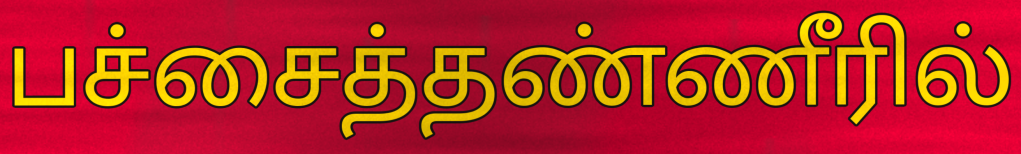
பச்சைத்தண்ணீரில்